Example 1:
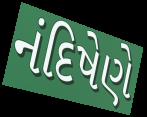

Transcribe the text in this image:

નંદિષેણે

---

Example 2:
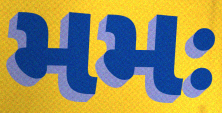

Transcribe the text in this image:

મમઃ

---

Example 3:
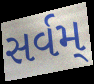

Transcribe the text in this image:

સર્વમ્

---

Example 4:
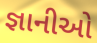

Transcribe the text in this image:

જ્ઞાનીઓ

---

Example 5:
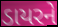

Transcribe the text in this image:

ડાયરને